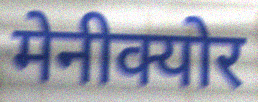
मेनीक्योर